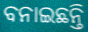
ବନାଇଛନ୍ତି